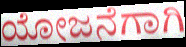
ಯೋಜನೆಗಾಗಿ